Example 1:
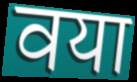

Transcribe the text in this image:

वया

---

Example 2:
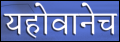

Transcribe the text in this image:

यहोवानेच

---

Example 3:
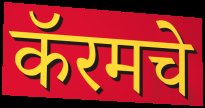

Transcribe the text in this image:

कॅरमचे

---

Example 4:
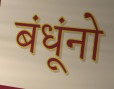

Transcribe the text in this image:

बंधूंनो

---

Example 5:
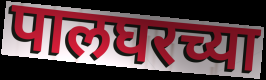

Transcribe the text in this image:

पालघरच्या